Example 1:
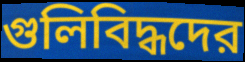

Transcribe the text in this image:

গুলিবিদ্ধদের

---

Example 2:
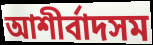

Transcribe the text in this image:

আশীর্বাদসম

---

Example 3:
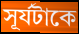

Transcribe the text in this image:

সূর্যটাকে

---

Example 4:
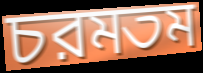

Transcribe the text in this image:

চরমতম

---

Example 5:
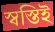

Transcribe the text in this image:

স্বস্তিই